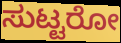
ಸುಟ್ಟರೋ